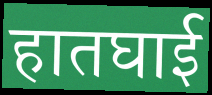
हातघाई